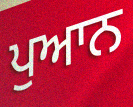
ਪੁਆਨ